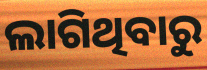
ଲାଗିଥିବାରୁ